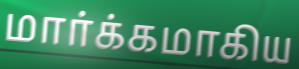
மார்க்கமாகிய